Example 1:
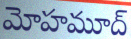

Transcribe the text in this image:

మోహమూద్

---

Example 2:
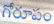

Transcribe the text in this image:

గోరూపం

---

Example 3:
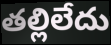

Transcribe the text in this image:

తల్లిలేదు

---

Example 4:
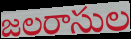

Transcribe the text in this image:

జలరాసుల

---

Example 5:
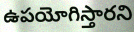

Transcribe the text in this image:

ఉపయోగిస్తారని